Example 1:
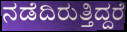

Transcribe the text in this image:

ನಡೆದಿರುತ್ತಿದ್ದರೆ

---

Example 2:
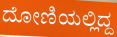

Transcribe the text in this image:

ದೋಣಿಯಲ್ಲಿದ್ದ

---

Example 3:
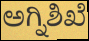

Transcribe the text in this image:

ಅಗ್ನಿಶಿಖೆ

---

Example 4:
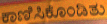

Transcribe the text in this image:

ಕಾಣಿಸಿಕೊಂಡಿತು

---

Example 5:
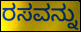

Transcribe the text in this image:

ರಸವನ್ನು